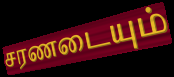
சரணடையும்